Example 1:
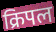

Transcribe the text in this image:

क्रिपल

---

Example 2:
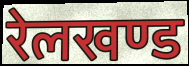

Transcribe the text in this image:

रेलखण्ड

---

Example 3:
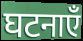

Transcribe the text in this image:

घटनाएँ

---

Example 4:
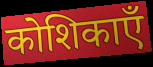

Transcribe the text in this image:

कोशिकाएँ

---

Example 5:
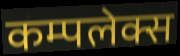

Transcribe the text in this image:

कम्पलेक्स